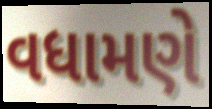
વધામણે